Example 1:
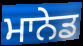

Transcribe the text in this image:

ਮਾਨੇਡ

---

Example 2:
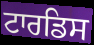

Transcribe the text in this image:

ਟਾਰਡਿਸ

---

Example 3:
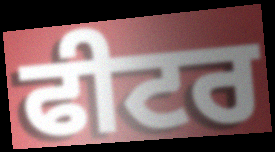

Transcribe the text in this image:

ਫੀਟਰ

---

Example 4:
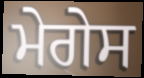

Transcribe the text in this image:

ਮੇਗੇਸ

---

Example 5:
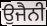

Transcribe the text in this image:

ਉਜੈਨੀ